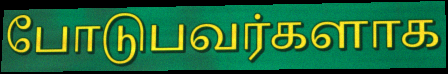
போடுபவர்களாக